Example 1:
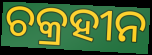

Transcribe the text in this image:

ଚକ୍ରହୀନ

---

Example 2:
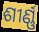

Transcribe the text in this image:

ଶୀର୍ଣ୍ଣ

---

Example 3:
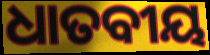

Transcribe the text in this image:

ଧାତବୀୟ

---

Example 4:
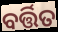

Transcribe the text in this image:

ବର୍ତ୍ତିତ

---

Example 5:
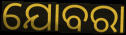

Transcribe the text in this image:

ଯୋବରା